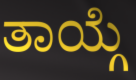
ತಾಯ್ಗೆ